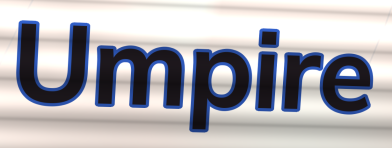
Umpire